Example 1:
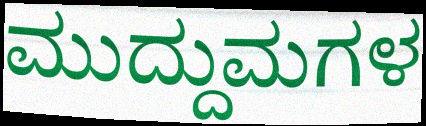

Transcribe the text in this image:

ಮುದ್ದುಮಗಳ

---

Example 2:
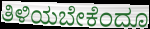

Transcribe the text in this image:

ತಿಳಿಯಬೇಕೆಂದೂ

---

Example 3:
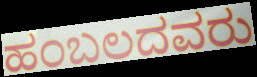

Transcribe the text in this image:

ಹಂಬಲದವರು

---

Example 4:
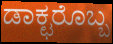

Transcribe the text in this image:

ಡಾಕ್ಟರೊಬ್ಬ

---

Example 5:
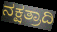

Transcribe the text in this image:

ನಕ್ಷತ್ರಾದಿ